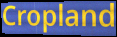
Cropland